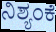
ನಿಶ್ಯಂಕೆ